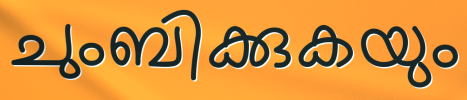
ചുംബിക്കുകയും